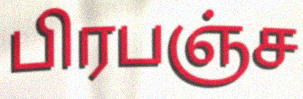
பிரபஞ்ச